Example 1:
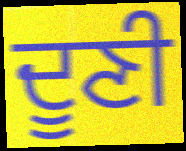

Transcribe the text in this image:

ਦੂਣੀ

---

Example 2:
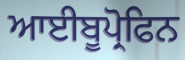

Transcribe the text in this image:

ਆਈਬੂਪ੍ਰੋਫਿਨ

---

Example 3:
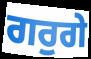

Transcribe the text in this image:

ਗਰੁਗੇ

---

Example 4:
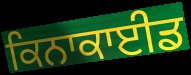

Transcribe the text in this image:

ਕਿਨਾਕਾਈਡ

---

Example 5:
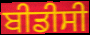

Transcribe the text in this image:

ਬੀਡੀਸੀ